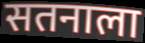
सतनाला